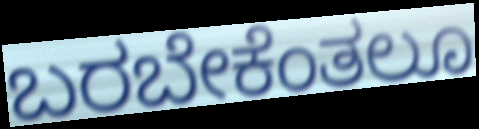
ಬರಬೇಕೆಂತಲೂ